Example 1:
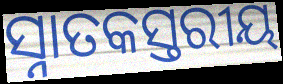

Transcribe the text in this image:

ସ୍ନାତକସ୍ତରୀୟ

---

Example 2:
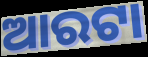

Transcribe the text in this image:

ଆରଟା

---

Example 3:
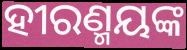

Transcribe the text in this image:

ହୀରଣ୍ମୟଙ୍କ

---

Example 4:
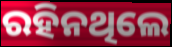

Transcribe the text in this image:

ରହିନଥିଲେ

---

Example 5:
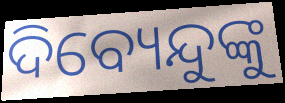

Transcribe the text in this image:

ଦିବ୍ୟେନ୍ଦୁଙ୍କୁ